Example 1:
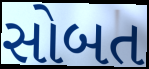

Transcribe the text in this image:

સોબત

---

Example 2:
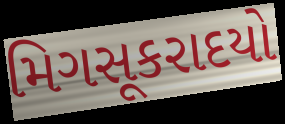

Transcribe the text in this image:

મિગસૂકરાદયો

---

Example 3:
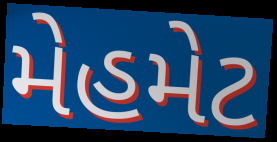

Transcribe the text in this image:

મેહમેટ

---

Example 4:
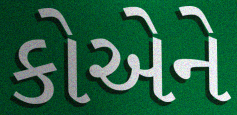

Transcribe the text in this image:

કોએને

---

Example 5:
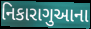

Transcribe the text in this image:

નિકારાગુઆના